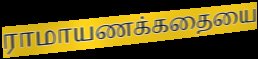
ராமாயணக்கதையை